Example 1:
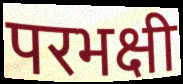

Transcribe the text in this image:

परभक्षी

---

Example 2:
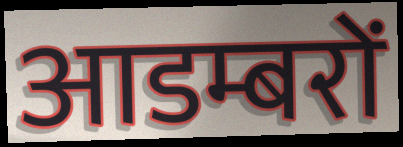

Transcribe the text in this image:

आडम्बरों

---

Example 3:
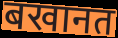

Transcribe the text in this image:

बखानत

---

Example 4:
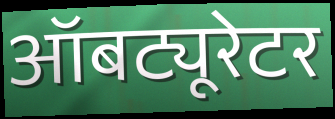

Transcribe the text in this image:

ऑबट्यूरेटर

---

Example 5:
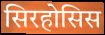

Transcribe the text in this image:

सिरहोसिस